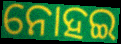
ନୋହଇ